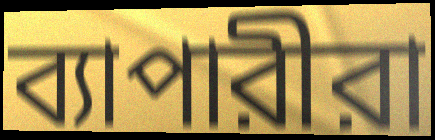
ব্যাপারীরা